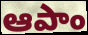
ఆపాం